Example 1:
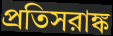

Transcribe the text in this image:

প্রতিসরাঙ্ক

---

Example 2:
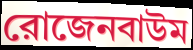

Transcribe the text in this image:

রোজেনবাউম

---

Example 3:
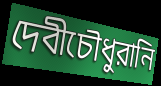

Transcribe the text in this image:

দেবীচৌধুরানি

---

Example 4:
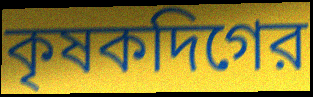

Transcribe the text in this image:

কৃষকদিগের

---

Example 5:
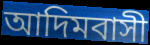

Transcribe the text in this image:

আদিমবাসী